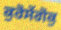
ਕੁਰੋਸੇਂਗੋਕੁ